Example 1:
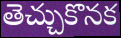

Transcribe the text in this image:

తెచ్చుకొనక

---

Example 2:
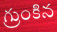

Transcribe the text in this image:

గ్రుంకిన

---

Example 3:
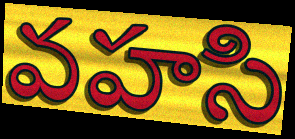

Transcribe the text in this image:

వహసి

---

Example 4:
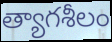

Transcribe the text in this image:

త్యాగశీలం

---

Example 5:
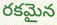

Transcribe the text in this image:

రకమైన